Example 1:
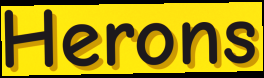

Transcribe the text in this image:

Herons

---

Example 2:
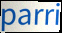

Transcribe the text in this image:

parri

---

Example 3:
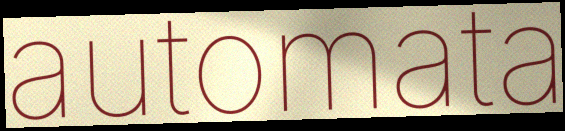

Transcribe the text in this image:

automata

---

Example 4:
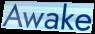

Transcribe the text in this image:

Awake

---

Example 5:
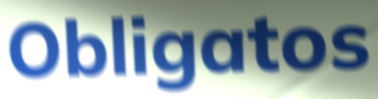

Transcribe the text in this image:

Obligatos